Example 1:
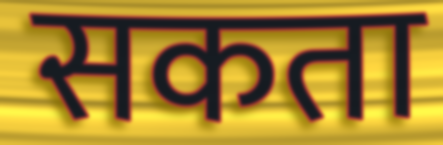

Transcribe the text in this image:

सकता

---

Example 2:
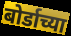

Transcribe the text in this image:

बोर्डाच्या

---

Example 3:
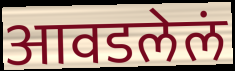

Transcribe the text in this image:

आवडलेलं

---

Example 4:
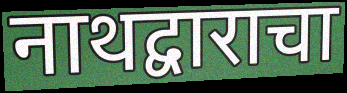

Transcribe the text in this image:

नाथद्वाराचा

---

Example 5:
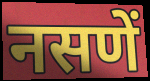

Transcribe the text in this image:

नसणें